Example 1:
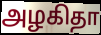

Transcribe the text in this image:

அழகிதா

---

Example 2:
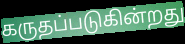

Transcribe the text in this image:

கருதப்படுகின்றது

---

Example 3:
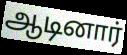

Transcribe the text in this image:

ஆடினார்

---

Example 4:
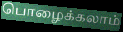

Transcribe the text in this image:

பொழைக்கலாம்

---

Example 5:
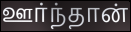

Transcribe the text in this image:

ஊர்ந்தான்